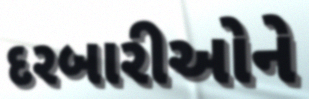
દરબારીઓને